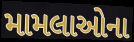
મામલાઓના